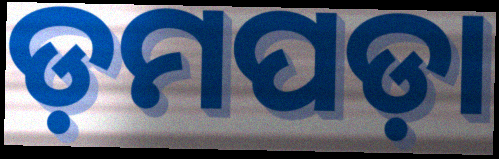
ଡ଼ମପଡ଼ା